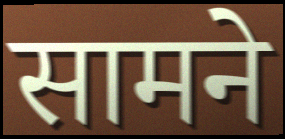
सामने